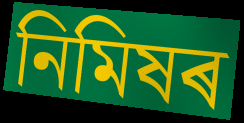
নিমিষৰ